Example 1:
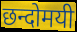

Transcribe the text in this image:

छन्दोमयी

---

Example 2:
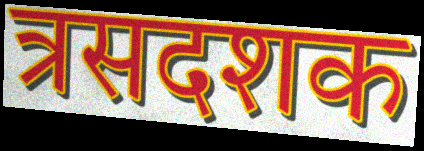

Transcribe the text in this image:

त्रसदशक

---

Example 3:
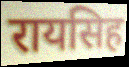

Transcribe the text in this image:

रायसिह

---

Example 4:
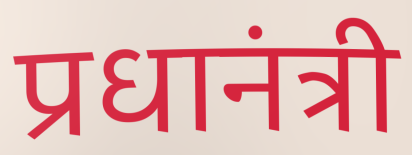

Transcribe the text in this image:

प्रधानंत्री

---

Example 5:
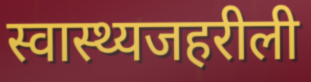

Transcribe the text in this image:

स्वास्थ्यजहरीली